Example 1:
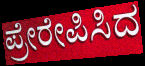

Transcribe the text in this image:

ಪ್ರೇರೇಪಿಸಿದ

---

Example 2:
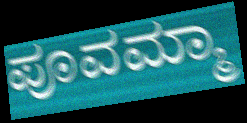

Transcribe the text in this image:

ಪೂವಮ್ಮಾ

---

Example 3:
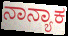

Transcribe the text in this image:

ನಾನ್ಯಾಕ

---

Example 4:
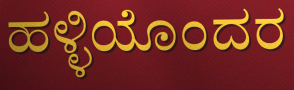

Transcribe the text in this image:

ಹಳ್ಳಿಯೊಂದರ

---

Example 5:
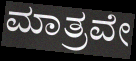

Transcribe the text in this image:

ಮಾತ್ರವೇ